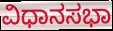
ವಿಧಾನಸಭಾ